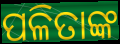
ପଳିତାଙ୍କ